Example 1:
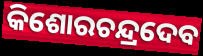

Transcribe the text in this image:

କିଶୋରଚନ୍ଦ୍ରଦେବ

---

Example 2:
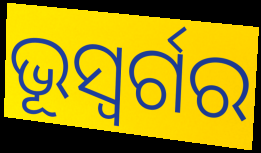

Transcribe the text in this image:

ଭୂସ୍ବର୍ଗର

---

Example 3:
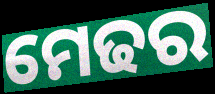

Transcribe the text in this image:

ମେଢର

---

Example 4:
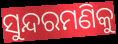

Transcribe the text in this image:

ସୁନ୍ଦରମଣିକୁ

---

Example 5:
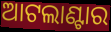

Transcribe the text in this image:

ଆଟଲାଣ୍ଟାର